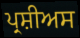
ਪ੍ਰਸ਼ੀਅਸ